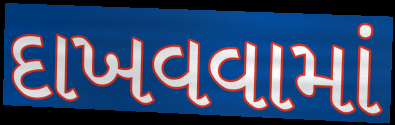
દાખવવામાં